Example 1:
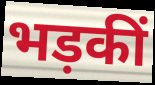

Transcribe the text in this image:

भड़कीं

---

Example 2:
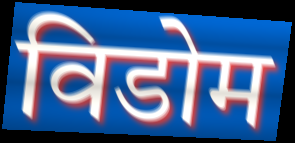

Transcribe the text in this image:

विडोम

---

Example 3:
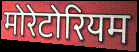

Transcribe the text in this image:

मोरेटोरियम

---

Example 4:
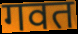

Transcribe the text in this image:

गवत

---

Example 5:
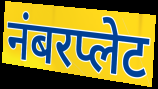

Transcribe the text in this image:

नंबरप्लेट